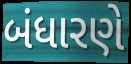
બંધારણે